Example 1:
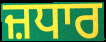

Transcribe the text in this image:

ਜ਼ਧਾਰ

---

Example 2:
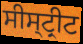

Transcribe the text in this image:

ਸੀਸ੍ਟ੍ਰੀਟ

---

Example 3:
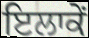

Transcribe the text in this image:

ਇਲਾਕੇਂ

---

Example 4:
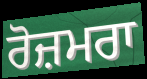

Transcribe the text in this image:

ਰੋਜ਼ਮਰਾ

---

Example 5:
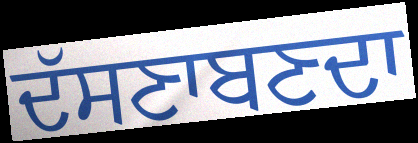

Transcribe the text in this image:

ਦੱਸਣਾਬਣਦਾ